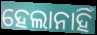
ହେଲାନାହିଁ